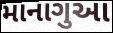
માનાગુઆ